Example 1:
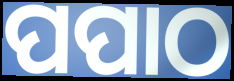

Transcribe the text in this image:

ପପାଠ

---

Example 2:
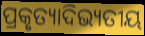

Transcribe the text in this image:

ପ୍ରକୃତ୍ୟାଦିଭ୍ୟତୀୟ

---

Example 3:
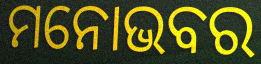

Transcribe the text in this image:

ମନୋଭବର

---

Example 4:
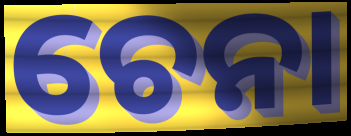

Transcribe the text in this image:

ଚେନା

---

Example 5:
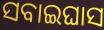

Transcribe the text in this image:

ସବାଇଘାସ